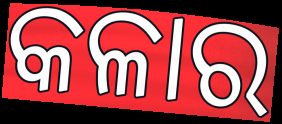
କଳାର